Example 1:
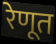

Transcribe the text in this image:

रेणूत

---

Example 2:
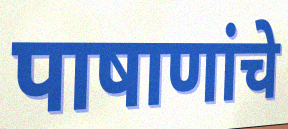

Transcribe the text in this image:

पाषाणांचे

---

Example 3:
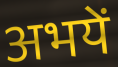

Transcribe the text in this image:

अभयें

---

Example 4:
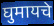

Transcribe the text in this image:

घुमायचे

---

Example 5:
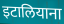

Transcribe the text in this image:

इटालियाना